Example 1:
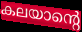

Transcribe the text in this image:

കലയാന്റെ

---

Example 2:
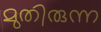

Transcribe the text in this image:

മുതിരുന്ന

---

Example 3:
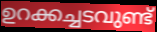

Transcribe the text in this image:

ഉറക്കച്ചടവുണ്ട്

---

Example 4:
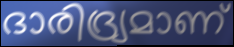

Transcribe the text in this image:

ദാരിദ്ര്യമാണ്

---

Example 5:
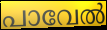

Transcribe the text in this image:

പാവേൽ